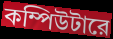
কম্পিউটারে